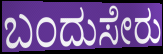
ಬಂದುಸೇರು